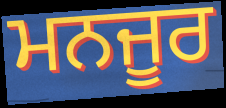
ਮਨਜੂਰ